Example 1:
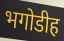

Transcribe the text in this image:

भगोडीह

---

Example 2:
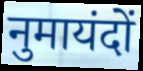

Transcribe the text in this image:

नुमायंदों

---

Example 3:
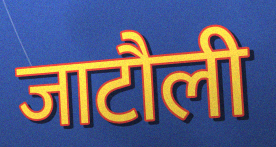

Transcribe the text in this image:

जाटौली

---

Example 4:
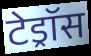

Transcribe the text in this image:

टेड्रॉस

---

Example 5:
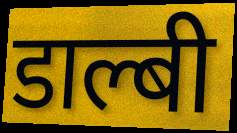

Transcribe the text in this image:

डाल्बी